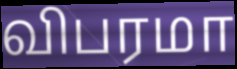
விபரமா